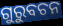
ଗୁରୁବଚନ